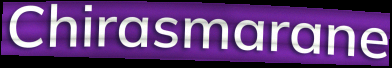
Chirasmarane